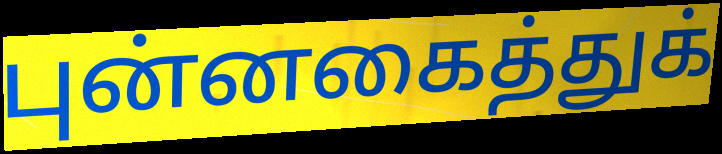
புன்னகைத்துக்